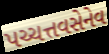
પચ્ચત્તવસેનેવ